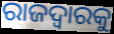
ରାଜଦ୍ୱାରକୁ